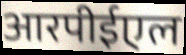
आरपीईएल